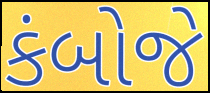
કંબોજે